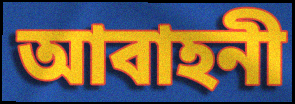
আবাহনী